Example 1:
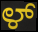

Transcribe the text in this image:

ಳ್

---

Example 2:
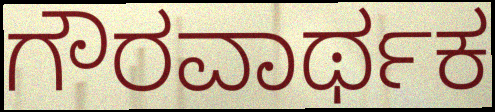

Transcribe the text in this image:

ಗೌರವಾರ್ಥಕ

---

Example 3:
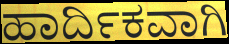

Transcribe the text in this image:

ಹಾರ್ದಿಕವಾಗಿ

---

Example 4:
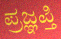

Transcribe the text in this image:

ಪ್ರಜ್ಞಪ್ತಿ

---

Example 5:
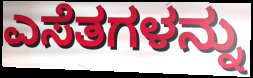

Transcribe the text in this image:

ಎಸೆತಗಳನ್ನು